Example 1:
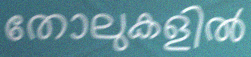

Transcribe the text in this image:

തോലുകളിൽ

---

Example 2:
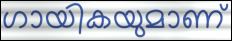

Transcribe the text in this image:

ഗായികയുമാണ്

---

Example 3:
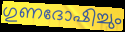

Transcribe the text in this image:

ഗുണദോഷിച്ചും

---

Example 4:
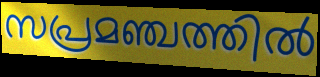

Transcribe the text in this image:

സപ്രമഞ്ചത്തിൽ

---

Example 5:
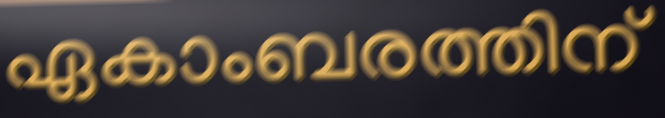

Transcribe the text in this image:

ഏകാംബരത്തിന്